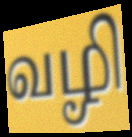
வழி